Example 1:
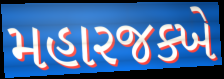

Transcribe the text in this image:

મહારજક્ખે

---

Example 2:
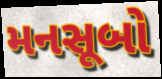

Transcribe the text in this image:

મનસૂબો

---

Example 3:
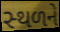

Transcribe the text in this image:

સ્‍થળને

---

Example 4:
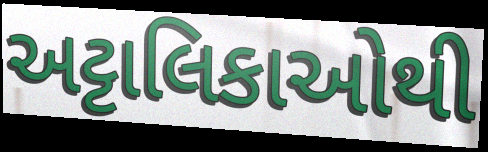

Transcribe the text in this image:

અટ્ટાલિકાઓથી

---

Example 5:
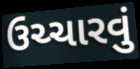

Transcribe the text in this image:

ઉચ્ચારવું